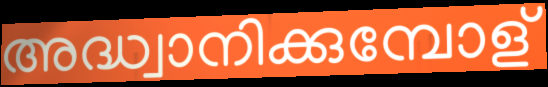
അദ്ധ്വാനിക്കുമ്പോള്